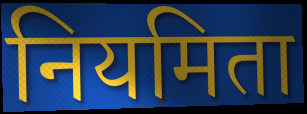
नियमिता